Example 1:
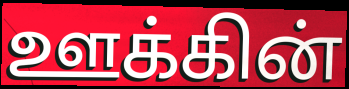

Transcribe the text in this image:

ஊக்கின்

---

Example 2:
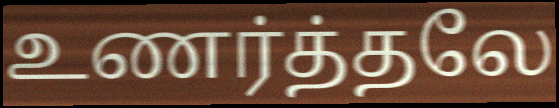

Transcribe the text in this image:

உணர்த்தலே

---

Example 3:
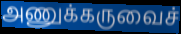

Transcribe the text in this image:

அணுக்கருவைச்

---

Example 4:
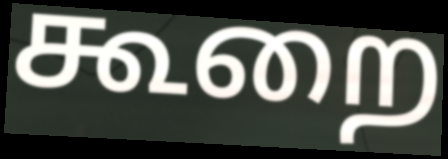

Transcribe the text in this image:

கூறை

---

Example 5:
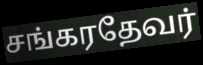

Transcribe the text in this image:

சங்கரதேவர்